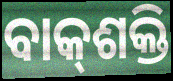
ବାକ୍‌ଶକ୍ତି